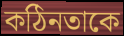
কঠিনতাকে